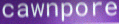
cawnpore